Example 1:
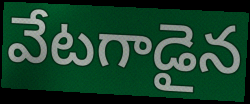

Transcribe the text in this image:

వేటగాడైన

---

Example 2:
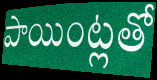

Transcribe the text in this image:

పాయింట్లతో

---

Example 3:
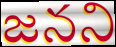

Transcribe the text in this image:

జనని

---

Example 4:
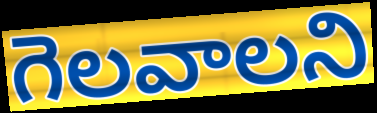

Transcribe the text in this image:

గెలవాలని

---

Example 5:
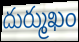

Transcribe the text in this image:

దుర్ముఖం